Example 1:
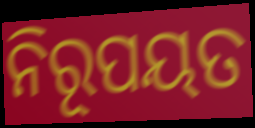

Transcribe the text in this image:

ନିରୂପୟତ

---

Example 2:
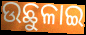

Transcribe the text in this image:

ଉଛୁଳାଇ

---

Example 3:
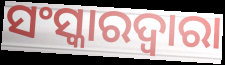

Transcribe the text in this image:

ସଂସ୍କାରଦ୍ୱାରା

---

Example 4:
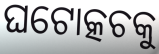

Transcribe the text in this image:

ଘଟୋତ୍କଚକୁ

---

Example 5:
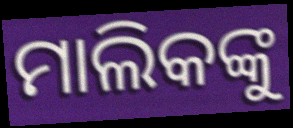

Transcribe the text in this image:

ମାଲିକଙ୍କୁ